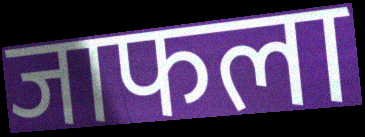
जाफला